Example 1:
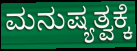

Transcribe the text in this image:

ಮನುಷ್ಯತ್ವಕ್ಕೆ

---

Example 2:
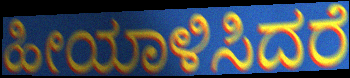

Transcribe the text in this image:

ಹೀಯಾಳಿಸಿದರೆ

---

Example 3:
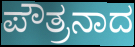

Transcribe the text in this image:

ಪೌತ್ರನಾದ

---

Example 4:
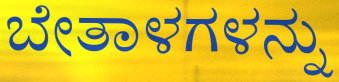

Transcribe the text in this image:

ಬೇತಾಳಗಳನ್ನು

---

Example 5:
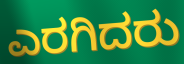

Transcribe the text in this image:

ಎರಗಿದರು